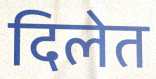
दिलेत